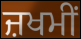
ਜ਼ਖਮੀਂ